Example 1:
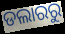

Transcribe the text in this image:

ଡଲାରରୁ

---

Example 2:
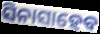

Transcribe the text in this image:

ସିନାସାହେବ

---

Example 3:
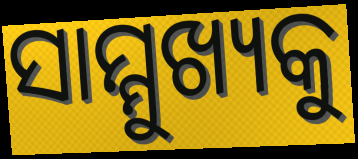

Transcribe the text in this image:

ସାମ୍ମୁଖ୍ୟକୁ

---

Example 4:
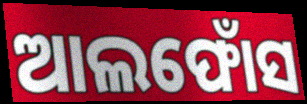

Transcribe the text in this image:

ଆଲଫୋଁସ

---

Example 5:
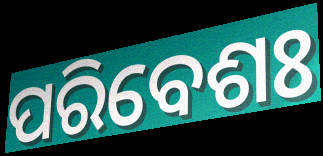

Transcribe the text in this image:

ପରିବେଶଃ